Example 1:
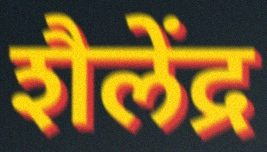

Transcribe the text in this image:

शैलेंद्र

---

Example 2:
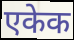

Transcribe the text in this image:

एकेक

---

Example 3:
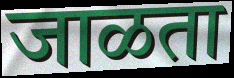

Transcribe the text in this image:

जाळता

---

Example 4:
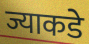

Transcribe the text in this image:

ज्याकडे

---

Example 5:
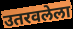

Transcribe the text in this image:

उतरवलेला